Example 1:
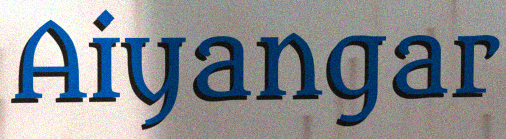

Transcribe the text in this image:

Aiyangar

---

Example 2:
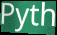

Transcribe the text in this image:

Pyth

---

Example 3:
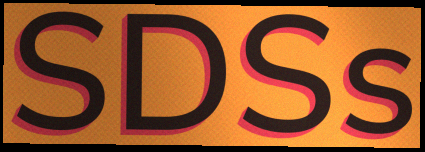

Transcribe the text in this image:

SDSs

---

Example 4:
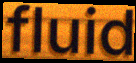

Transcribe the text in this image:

fluid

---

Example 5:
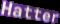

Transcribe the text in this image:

Hatter